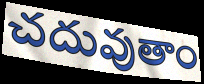
చదువుతాం